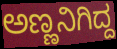
ಅಣ್ಣನಿಗಿದ್ದ